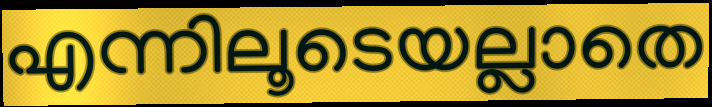
എന്നിലൂടെയല്ലാതെ